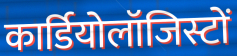
कार्डियोलॉजिस्टों